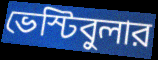
ভেস্টিবুলার